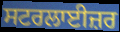
ਸਟਰਲਾਈਜ਼ਰ